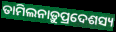
ତାମିଲନାଡ଼ୁପ୍ରଦେଶସ୍ୟ